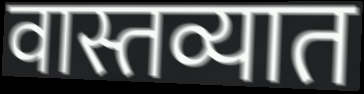
वास्तव्यात